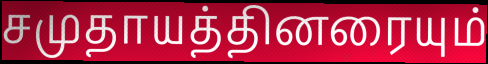
சமுதாயத்தினரையும்